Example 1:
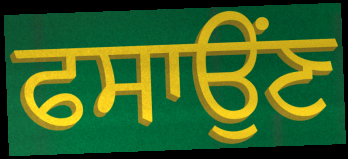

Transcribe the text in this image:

ਫਸਾਉਂਣ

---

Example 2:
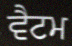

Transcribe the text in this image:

ਵੈਟਮ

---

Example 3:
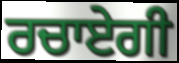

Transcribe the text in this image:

ਰਚਾਏਗੀ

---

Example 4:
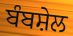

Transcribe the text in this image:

ਬੰਬਸ਼ੇਲ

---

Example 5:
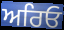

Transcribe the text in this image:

ਅਰਿਓ